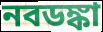
নবডঙ্কা